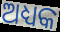
ଅଧ୍ଯକ